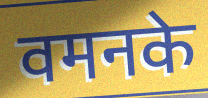
वमनके